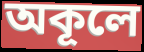
অকূলে